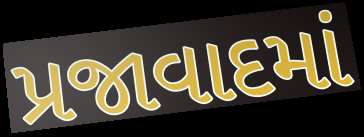
પ્રજાવાદમાં